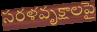
సరళవృక్షాలపై